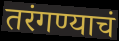
तरंगण्याचं